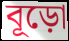
বূড়ো